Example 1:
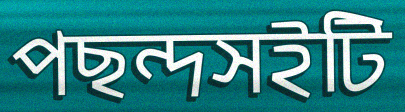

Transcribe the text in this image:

পছন্দসইটি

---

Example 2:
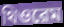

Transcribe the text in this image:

থিওরেম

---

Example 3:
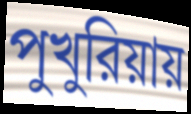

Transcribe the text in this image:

পুখুরিয়ায়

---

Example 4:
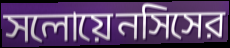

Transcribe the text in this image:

সলোয়েনসিসের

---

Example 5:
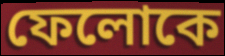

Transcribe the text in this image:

ফেলোকে